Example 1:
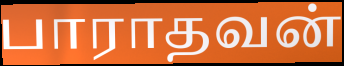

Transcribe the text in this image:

பாராதவன்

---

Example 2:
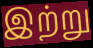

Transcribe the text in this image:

இற்று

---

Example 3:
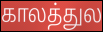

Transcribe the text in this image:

காலத்துல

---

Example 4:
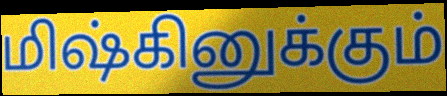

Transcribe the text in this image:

மிஷ்கினுக்கும்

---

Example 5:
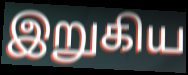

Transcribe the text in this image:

இறுகிய